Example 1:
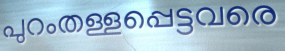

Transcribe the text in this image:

പുറംതള്ളപ്പെട്ടവരെ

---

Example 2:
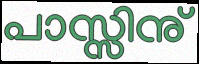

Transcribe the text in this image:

പാസ്സിനു്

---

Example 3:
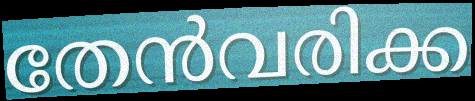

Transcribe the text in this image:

തേൻവരിക്ക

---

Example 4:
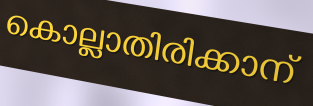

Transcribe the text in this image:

കൊല്ലാതിരിക്കാന്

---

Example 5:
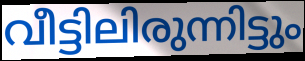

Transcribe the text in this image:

വീട്ടിലിരുന്നിട്ടും